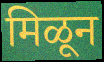
मिळून